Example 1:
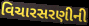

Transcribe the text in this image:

વિચારસરણીની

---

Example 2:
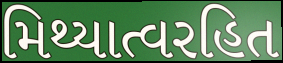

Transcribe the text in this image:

મિથ્યાત્વરહિત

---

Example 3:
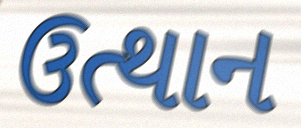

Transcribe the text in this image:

ઉત્થાન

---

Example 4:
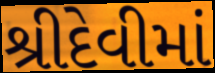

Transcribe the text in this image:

શ્રીદેવીમાં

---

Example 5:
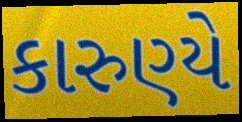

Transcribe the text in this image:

કારુણ્યે